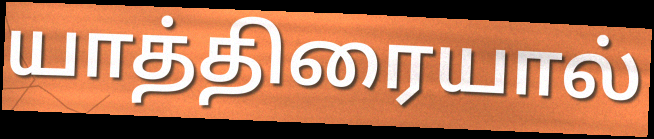
யாத்திரையால்